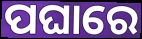
ପଘାରେ